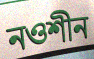
নওশীন